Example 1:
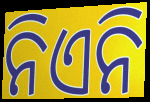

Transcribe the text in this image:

ନିଏନି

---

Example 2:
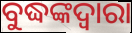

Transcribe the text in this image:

ବୁଦ୍ଧଙ୍କଦ୍ଵାରା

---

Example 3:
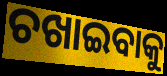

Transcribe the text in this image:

ଚଖାଇବାକୁ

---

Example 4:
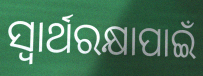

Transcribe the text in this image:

ସ୍ବାର୍ଥରକ୍ଷାପାଇଁ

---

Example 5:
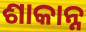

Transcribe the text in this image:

ଶାକାନ୍ନ